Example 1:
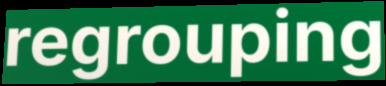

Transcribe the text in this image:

regrouping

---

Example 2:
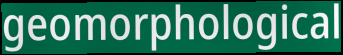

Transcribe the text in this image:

geomorphological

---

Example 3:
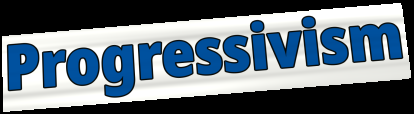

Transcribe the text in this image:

Progressivism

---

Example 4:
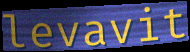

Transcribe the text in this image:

levavit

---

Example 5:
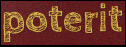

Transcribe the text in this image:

poterit